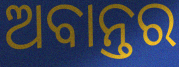
ଅବାନ୍ତର